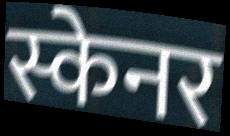
स्‍केनर